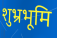
शुभ्रभूमि